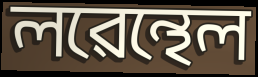
লৱেন্থেল